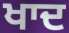
ਖਾਦ